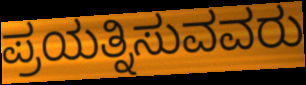
ಪ್ರಯತ್ನಿಸುವವರು